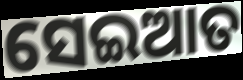
ସେଇଆତ